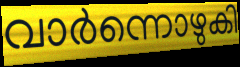
വാർന്നൊഴുകി